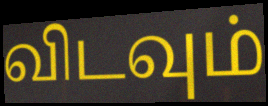
விடவும்